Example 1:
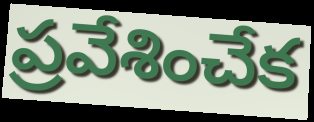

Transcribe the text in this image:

ప్రవేశించేక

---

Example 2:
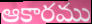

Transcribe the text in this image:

ఆకారము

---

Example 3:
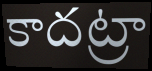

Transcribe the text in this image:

కాదట్రా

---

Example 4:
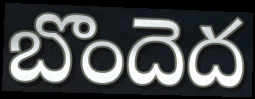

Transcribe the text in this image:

బొందెద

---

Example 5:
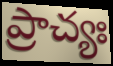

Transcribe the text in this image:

ప్రాచ్యః